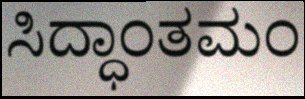
ಸಿದ್ಧಾಂತಮಂ